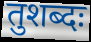
तुशब्दः